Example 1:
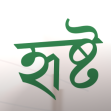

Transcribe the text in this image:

হৃষ্ট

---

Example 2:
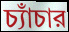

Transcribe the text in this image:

চ্যাঁচার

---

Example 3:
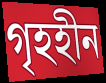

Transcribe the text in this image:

গৃহহীন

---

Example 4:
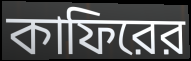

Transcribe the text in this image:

কাফিরের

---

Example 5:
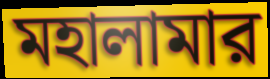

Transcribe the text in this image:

মহালামার